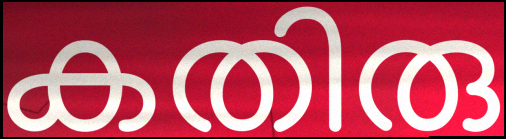
കതിരു